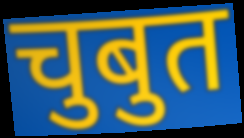
चुबुत